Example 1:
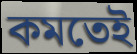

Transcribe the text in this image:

কমতেই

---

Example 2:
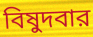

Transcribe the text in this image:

বিষুদবার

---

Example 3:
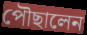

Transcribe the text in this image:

পৌছালেন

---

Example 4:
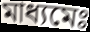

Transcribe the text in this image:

মাধ্যমেঃ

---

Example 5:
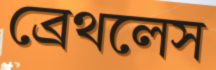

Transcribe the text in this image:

ব্রেথলেস